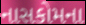
નાસકોમના